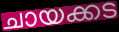
ചായക്കട